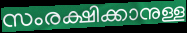
സംരക്ഷിക്കാനുള്ള